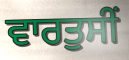
ਵਾਰਤੁਸੀਂ